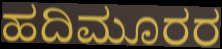
ಹದಿಮೂರರ